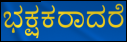
ಭಕ್ಷಕರಾದರೆ